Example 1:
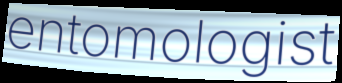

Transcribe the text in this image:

entomologist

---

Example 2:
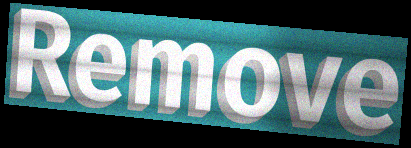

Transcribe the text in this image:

Remove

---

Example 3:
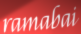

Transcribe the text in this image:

ramabai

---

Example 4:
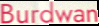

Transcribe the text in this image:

Burdwan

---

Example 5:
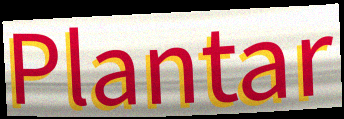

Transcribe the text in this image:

Plantar